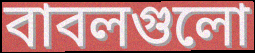
বাবলগুলো